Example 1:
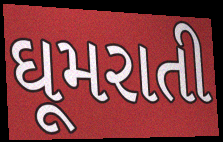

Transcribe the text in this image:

ઘૂમરાતી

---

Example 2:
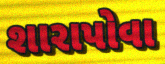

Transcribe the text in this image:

શારાપોવા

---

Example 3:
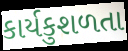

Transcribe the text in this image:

કાર્યકુશળતા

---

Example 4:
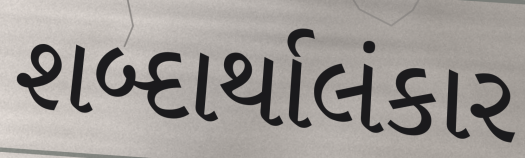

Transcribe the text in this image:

શબ્દાર્થાલંકાર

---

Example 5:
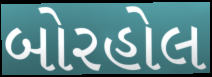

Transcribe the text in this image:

બોરહોલ